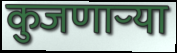
कुजणाऱ्या